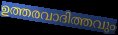
ഉത്തരവാദിത്തവും